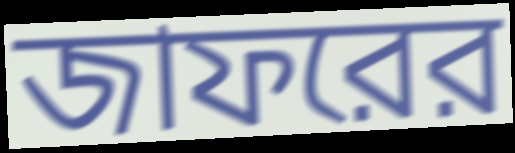
জাফরের